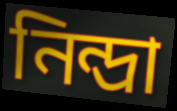
নিন্দ্ৰা